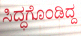
ಸಿದ್ಧಗೊಂಡಿದ್ದ